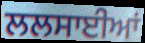
ਲਲਸਾਈਆਂ